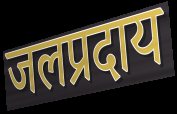
जलप्रदाय